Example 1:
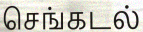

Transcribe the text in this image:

செங்கடல்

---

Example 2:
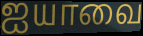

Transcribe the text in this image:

ஐயாவை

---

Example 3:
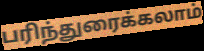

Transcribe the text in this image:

பரிந்துரைக்கலாம்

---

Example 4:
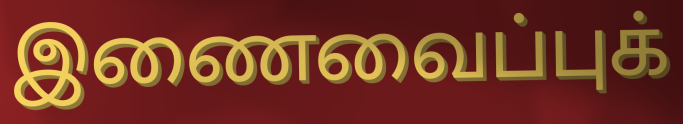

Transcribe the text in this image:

இணைவைப்புக்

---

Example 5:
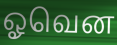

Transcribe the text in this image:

ஓவென